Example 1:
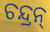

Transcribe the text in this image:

ଚନ୍ଦ୍ରନ୍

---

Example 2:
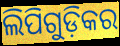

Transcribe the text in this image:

ଲିପିଗୁଡ଼ିକର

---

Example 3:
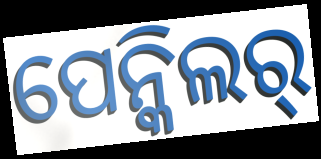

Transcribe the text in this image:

ପେନ୍କିଲର୍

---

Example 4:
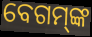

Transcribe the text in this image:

ବେଗମ୍‌ଙ୍କ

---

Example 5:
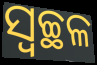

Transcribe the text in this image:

ସ୍ବଚ୍ଛଳ